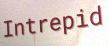
Intrepid